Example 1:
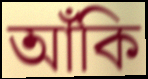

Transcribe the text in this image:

আঁকি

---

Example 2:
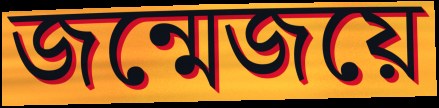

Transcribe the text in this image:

জন্মেজয়ে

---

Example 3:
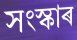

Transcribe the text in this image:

সংস্কাৰ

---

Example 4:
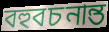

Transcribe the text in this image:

বহুবচনান্ত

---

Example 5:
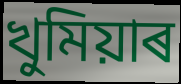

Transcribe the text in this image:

খুমিয়াৰ